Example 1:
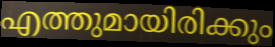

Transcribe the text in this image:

എത്തുമായിരിക്കും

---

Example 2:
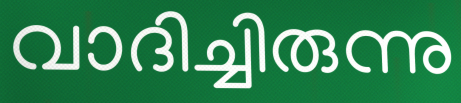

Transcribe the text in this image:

വാദിച്ചിരുന്നു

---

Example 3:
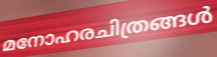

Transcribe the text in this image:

മനോഹരചിത്രങ്ങൾ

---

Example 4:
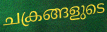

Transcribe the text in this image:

ചക്രങ്ങളുടെ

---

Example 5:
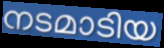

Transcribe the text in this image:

നടമാടിയ